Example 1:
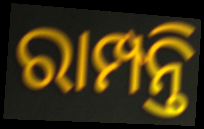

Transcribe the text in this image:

ରାମ୍ପନ୍ତି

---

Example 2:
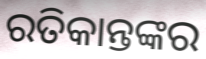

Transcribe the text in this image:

ରତିକାନ୍ତଙ୍କର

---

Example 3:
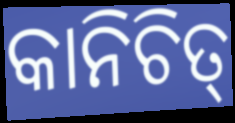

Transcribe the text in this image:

କାନିଚିତ୍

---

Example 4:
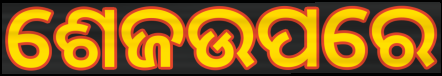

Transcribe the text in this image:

ଶେଜଉପରେ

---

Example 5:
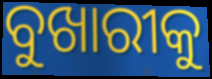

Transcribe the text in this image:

ବୁଖାରୀକୁ